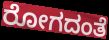
ರೋಗದಂತೆ